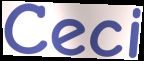
Ceci